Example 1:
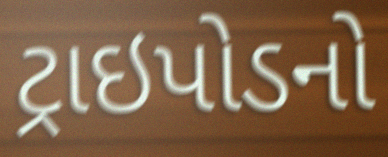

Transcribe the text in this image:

ટ્રાઇપોડનો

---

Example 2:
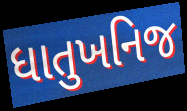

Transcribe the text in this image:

ધાતુખનિજ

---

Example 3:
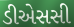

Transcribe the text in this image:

ડીએસસી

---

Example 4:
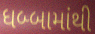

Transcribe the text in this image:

ધબ્બામાંથી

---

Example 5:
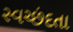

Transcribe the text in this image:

સ્વચ્છંદતા